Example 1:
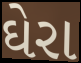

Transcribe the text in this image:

ઘેરા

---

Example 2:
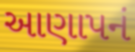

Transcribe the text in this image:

આણાપનં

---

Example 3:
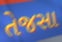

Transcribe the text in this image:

તેજસા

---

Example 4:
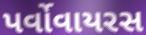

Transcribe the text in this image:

પર્વોવાયરસ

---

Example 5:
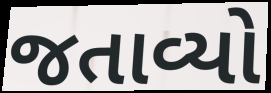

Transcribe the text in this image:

જતાવ્યો